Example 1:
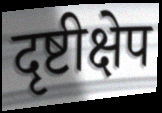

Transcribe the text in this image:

दृष्टीक्षेप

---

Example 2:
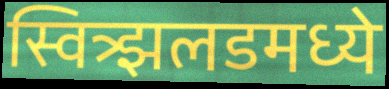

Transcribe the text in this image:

स्वित्र्झलडमध्ये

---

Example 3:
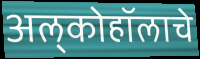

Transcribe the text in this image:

अल्कोहॉलाचे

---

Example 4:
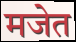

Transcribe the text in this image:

मजेत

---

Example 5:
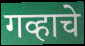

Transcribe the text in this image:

गव्हाचे